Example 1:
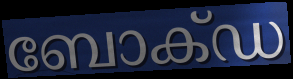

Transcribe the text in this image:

ബോക്ഡ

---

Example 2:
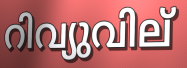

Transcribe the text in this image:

റിവ്യുവില്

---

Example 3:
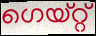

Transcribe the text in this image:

ഗെയ്റ്റ്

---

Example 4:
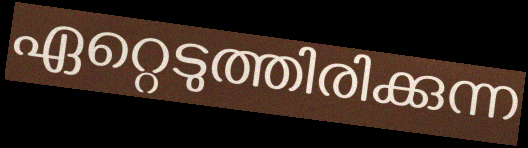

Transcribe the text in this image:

ഏറ്റെടുത്തിരിക്കുന്ന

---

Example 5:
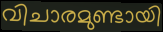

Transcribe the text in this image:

വിചാരമുണ്ടായി